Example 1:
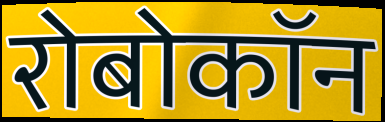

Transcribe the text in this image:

रोबोकॉन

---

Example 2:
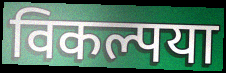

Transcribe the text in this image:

विकल्पया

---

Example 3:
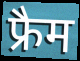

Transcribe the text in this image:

फ्रैम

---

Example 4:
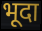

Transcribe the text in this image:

भूदा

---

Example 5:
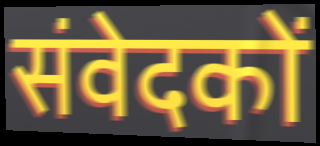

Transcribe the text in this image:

संवेदकों